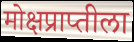
मोक्षप्राप्तीला